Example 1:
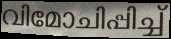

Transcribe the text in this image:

വിമോചിപ്പിച്ച്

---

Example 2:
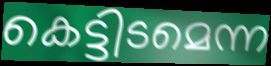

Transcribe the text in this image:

കെട്ടിടമെന്ന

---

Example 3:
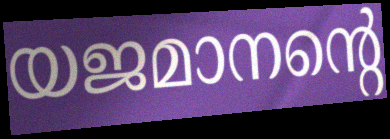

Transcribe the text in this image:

യജമാനന്റെ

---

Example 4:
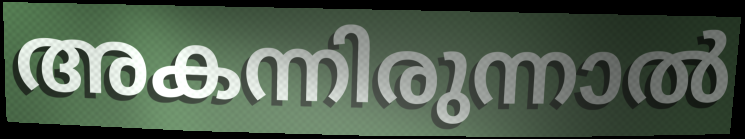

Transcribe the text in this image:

അകന്നിരുന്നാൽ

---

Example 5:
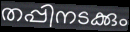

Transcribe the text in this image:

തപ്പിനടക്കും